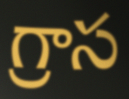
గ్రాస